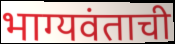
भाग्यवंताची